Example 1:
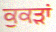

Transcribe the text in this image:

ਕੁਕੜਾਂ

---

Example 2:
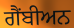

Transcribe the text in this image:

ਗੈਂਬੀਅਨ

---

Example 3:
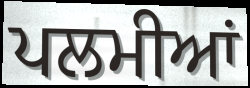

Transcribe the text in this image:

ਪਲਮੀਆਂ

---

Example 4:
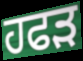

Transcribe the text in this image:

ਹਫੜ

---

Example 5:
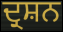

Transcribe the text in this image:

ਦ੍ਰਸ਼ਨ